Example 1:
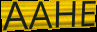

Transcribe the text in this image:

AAHE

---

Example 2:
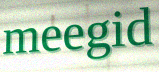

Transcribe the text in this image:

meegid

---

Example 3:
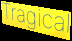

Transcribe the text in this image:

Tragical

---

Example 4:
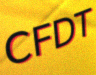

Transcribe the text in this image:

CFDT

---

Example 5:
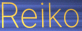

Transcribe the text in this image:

Reiko